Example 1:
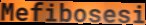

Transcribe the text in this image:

Mefibosesi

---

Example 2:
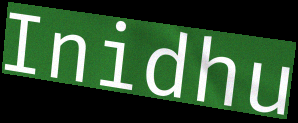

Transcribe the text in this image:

Inidhu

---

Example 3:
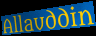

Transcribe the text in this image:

Allauddin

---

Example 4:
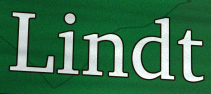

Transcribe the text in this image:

Lindt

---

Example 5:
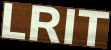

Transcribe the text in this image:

LRIT